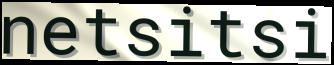
netsitsi